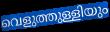
വെളുത്തുള്ളിയും